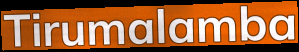
Tirumalamba